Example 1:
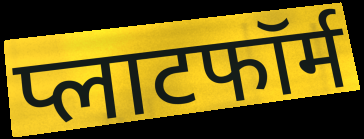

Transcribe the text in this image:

प्लाटफॉर्म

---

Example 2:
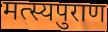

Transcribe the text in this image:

मत्स्यपुराण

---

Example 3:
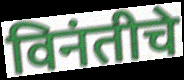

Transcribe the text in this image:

विनंतीचे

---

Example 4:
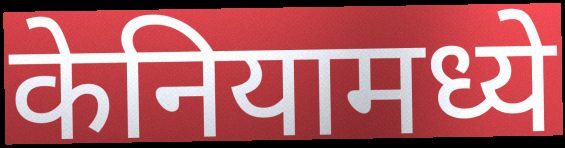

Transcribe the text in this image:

केनियामध्ये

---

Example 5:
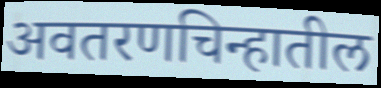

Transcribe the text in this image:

अवतरणचिन्हातील